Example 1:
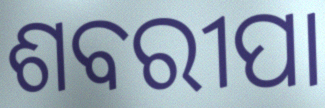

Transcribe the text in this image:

ଶବରୀପା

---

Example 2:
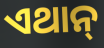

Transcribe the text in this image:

ଏଥାନ୍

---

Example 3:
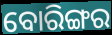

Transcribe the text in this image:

ବୋରିଙ୍ଗର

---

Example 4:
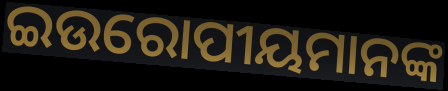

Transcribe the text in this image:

ଇଉରୋପୀୟମାନଙ୍କ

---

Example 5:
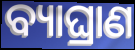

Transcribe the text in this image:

ବ୍ୟାଘ୍ରାଣ